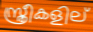
സ്ത്രീകളില്